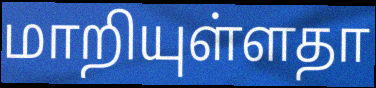
மாறியுள்ளதா